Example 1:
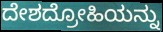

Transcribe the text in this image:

ದೇಶದ್ರೋಹಿಯನ್ನು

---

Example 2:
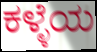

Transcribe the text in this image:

ಕಳ್ಳೆಯ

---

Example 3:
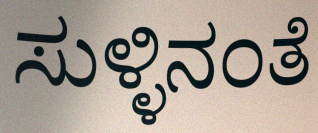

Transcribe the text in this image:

ಸುಳ್ಳಿನಂತೆ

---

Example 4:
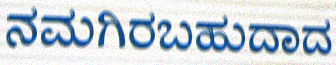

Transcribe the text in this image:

ನಮಗಿರಬಹುದಾದ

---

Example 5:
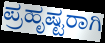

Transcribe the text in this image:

ಪ್ರಹೃಷ್ಟರಾಗಿ